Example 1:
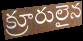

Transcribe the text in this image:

క్రూరులైన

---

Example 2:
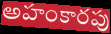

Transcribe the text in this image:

అహంకారపు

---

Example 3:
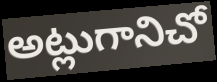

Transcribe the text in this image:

అట్లుగానిచో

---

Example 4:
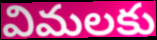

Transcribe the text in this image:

విమలకు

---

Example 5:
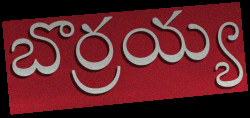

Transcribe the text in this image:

బొర్రయ్య